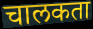
चालकता